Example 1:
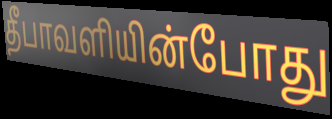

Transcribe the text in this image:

தீபாவளியின்போது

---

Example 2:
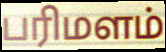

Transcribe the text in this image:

பரிமளம்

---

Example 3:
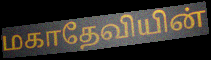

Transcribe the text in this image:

மகாதேவியின்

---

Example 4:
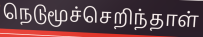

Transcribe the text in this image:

நெடுமூச்செறிந்தாள்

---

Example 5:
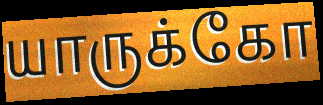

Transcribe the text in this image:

யாருக்கோ